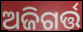
ଅଜିଗର୍ତ୍ତ